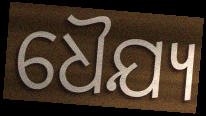
ଧୈଯ୍ଯ